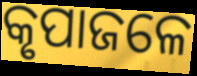
କୃପାଜଳେ